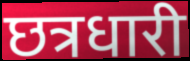
छत्रधारी